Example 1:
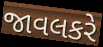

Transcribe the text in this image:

જાવલકરે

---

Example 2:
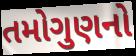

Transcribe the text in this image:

તમોગુણનો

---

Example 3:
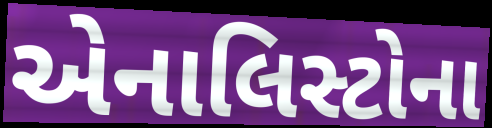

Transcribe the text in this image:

એનાલિસ્ટોના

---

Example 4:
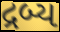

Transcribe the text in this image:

દ્રબ્ય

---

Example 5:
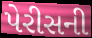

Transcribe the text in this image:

પેરીસની